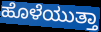
ಹೊಳೆಯುತ್ತಾ